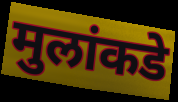
मुलांकडे